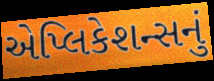
એપ્લિકેશન્સનું